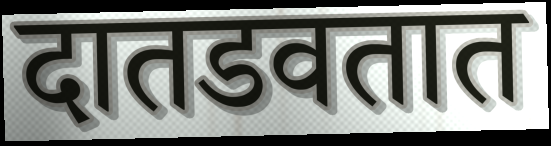
दातडवतात